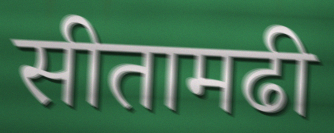
सीतामढी